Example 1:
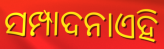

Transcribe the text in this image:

ସମ୍ପାଦନାଏହି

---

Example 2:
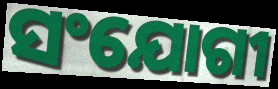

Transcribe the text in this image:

ସଂଯୋଗୀ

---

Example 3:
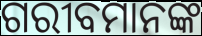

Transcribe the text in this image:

ଗରୀବମାନଙ୍କ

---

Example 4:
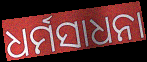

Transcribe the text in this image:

ଧର୍ମସାଧନା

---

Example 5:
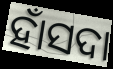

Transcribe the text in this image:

ହାଁସଦା